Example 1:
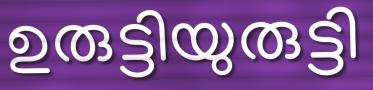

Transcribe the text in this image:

ഉരുട്ടിയുരുട്ടി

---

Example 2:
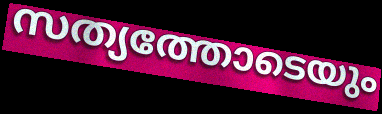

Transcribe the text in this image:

സത്യത്തോടെയും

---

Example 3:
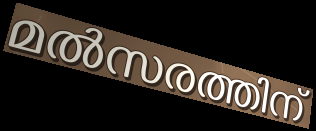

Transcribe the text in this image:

മൽസരത്തിന്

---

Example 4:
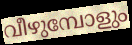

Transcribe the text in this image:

വീഴുമ്പോളും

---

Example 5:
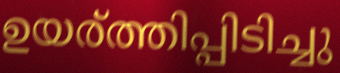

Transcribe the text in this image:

ഉയര്ത്തിപ്പിടിച്ചു